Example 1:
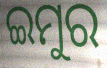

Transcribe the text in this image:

ଇମୁର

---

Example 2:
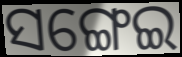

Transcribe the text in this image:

ସଙ୍ଗେଇ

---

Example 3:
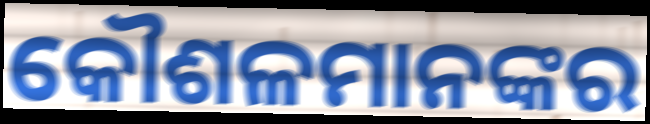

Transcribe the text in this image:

କୌଶଳମାନଙ୍କର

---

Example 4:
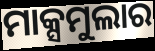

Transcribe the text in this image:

ମାକ୍ସମୁଲାର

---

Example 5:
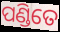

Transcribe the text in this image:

ପଣ୍ଡିତେ